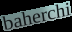
baherchi